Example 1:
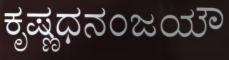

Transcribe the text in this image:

ಕೃಷ್ಣಧನಂಜಯೌ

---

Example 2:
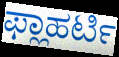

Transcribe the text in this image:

ಫ್ಲಾಹರ್ಟಿ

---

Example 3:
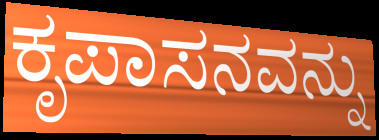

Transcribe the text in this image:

ಕೃಪಾಸನವನ್ನು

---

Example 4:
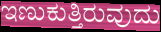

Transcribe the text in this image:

ಇಣುಕುತ್ತಿರುವುದು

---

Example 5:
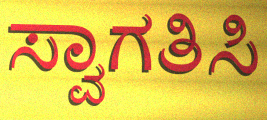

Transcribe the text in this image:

ಸ್ವಾಗತಿಸಿ